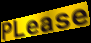
PLease